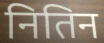
नितिन